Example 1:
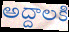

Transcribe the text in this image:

అద్దాలకి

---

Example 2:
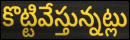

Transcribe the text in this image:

కొట్టివేస్తున్నట్లు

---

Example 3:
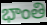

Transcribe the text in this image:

భాంతి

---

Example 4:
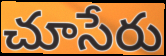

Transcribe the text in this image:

చూసేరు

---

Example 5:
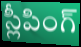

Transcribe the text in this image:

స్లీపింగ్